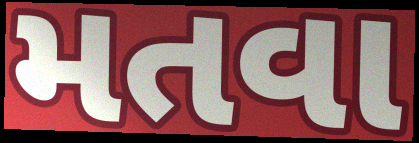
મતવા